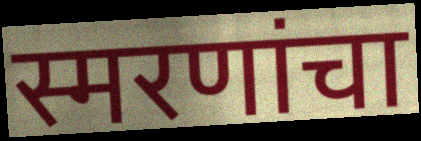
स्मरणांचा